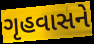
ગૃહવાસને